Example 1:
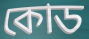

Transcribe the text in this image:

কোড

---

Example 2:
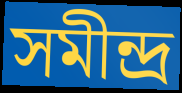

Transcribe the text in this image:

সমীন্দ্ৰ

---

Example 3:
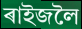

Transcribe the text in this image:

ৰাইজলৈ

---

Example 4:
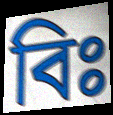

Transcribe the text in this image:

বিঃ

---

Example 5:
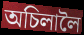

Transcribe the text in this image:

অচিলালৈ